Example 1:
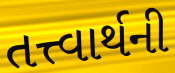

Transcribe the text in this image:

તત્ત્વાર્થની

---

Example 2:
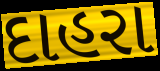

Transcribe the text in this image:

દાહરા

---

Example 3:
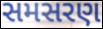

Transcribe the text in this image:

સમસરણ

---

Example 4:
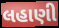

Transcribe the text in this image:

લહાણી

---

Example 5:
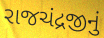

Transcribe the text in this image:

રાજચંદ્રજીનું